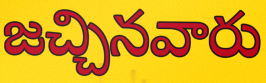
జచ్చినవారు